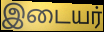
இடையர்